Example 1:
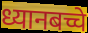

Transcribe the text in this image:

ध्यानबच्चे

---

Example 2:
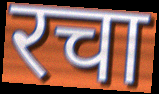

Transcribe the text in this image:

रचा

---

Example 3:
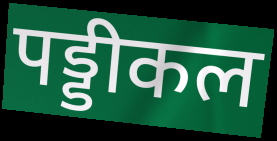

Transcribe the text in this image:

पड्डीकल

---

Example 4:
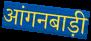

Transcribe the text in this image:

आंगनबाड़ी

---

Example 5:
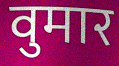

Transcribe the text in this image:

वुमार